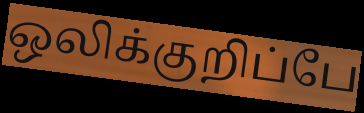
ஒலிக்குறிப்பே